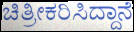
ಚಿತ್ರೀಕರಿಸಿದ್ದಾನೆ